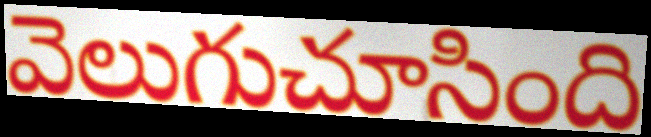
వెలుగుచూసింది